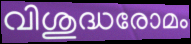
വിശുദ്ധരോമം